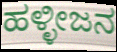
ಹಳ್ಳೀಜನ